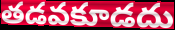
తడవకూడదు